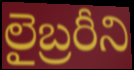
లైబ్రరీని